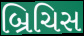
બ્રિચિસ